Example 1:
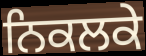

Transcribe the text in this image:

ਨਿਕਲਕੇ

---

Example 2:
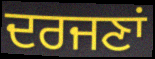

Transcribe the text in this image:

ਦਰਜਣਾਂ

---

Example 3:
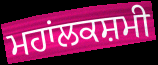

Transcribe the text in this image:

ਮਹਾਂਲਕਸ਼ਮੀ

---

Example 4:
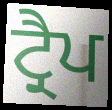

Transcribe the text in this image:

ਟ੍ਰੈਪ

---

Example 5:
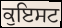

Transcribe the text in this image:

ਕੁਇਸਟ